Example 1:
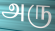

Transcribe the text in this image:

அரு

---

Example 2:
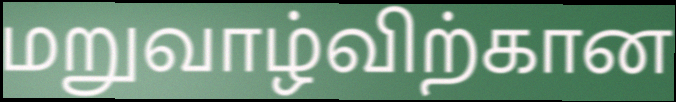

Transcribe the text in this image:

மறுவாழ்விற்கான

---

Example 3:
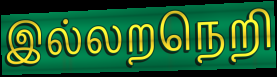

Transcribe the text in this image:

இல்லறநெறி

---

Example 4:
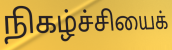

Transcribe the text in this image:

நிகழ்ச்சியைக்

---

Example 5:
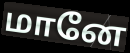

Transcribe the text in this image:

மானே